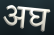
अघ